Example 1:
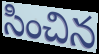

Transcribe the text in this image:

సించిన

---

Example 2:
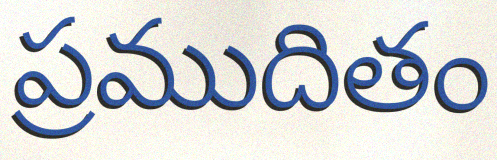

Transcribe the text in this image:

ప్రముదితం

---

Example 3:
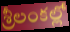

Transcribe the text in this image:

శ్రీలంకల్లో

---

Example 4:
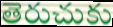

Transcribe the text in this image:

తెరుచుకు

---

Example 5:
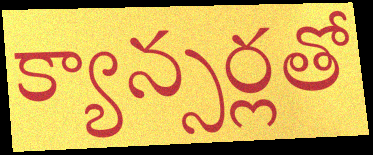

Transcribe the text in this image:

క్యాన్సర్లతో